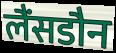
लैंसडौन